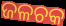
ଜଳଚକ